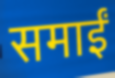
समाईं